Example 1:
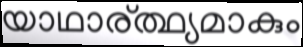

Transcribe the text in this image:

യാഥാര്ത്ഥ്യമാകും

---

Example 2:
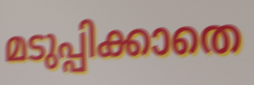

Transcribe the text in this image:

മടുപ്പിക്കാതെ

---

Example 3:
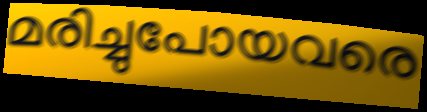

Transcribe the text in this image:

മരിച്ചുപോയവരെ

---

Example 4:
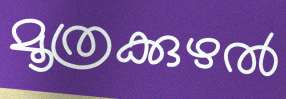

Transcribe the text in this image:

മൂത്രക്കുഴൽ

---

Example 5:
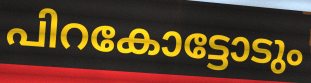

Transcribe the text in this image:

പിറകോട്ടോടും